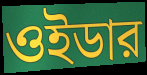
ওইডার